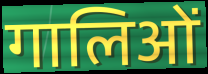
गालिओं